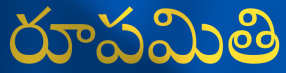
రూపమితి